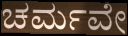
ಚರ್ಮವೇ